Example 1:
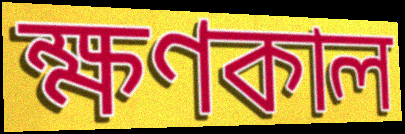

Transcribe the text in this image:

ক্ষণকাল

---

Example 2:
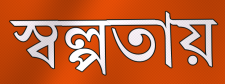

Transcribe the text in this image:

স্বল্পতায়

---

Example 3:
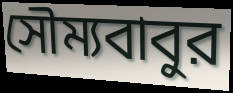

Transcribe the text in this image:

সৌম্যবাবুর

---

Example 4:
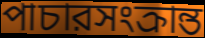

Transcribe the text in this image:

পাচারসংক্রান্ত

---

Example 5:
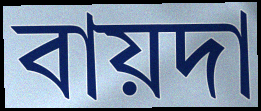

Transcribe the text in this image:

বায়দা